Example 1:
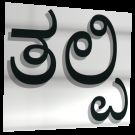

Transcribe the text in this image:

ತಲ್ಪಿ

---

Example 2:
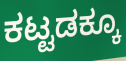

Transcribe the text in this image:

ಕಟ್ಟಡಕ್ಕೂ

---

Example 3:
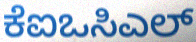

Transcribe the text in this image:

ಕೆಐಒಸಿಎಲ್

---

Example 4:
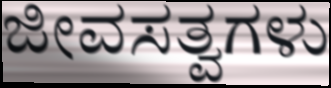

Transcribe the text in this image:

ಜೀವಸತ್ವಗಳು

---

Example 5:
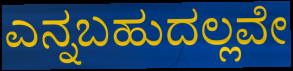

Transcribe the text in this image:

ಎನ್ನಬಹುದಲ್ಲವೇ